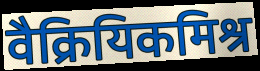
वैक्रियिकमिश्र